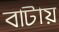
বাটায়